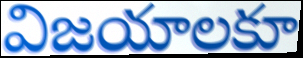
విజయాలకూ